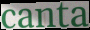
canta